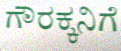
ಗೌರಕ್ಕನಿಗೆ